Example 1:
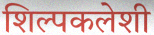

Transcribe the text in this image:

शिल्पकलेशी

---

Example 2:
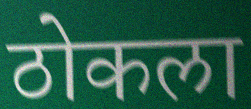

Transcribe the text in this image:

ठोकला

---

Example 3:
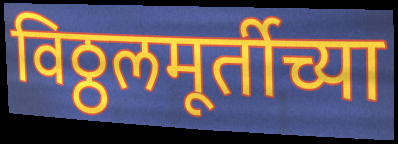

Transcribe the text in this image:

विठ्ठलमूर्तीच्या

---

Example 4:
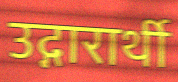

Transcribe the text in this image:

उद्गारार्थी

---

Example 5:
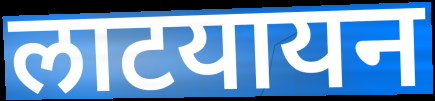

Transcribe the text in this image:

लाटयायन